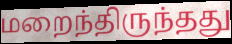
மறைந்திருந்தது